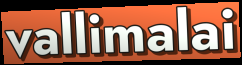
vallimalai